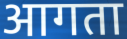
आगता